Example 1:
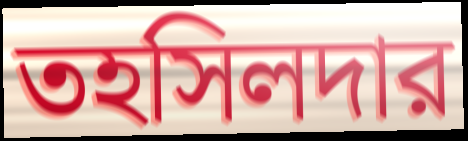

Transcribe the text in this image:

তহসিলদার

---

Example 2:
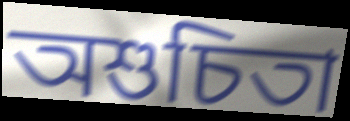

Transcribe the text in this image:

অশুচিতা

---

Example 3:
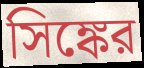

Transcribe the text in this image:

সিঙ্কের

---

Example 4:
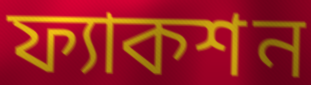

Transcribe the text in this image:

ফ্যাকশন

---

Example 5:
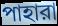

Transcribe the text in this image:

পাহারা